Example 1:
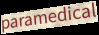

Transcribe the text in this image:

paramedical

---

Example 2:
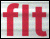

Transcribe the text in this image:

flt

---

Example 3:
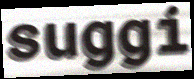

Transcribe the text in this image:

suggi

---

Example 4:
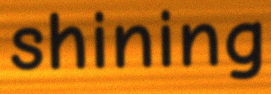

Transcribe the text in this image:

shining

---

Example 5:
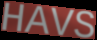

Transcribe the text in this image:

HAVS